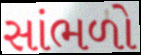
સાંભળો